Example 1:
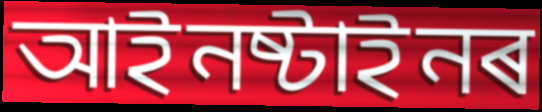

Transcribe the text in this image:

আইনষ্টাইনৰ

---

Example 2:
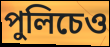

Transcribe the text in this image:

পুলিচেও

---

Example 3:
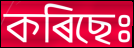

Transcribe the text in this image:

কৰিছেঃ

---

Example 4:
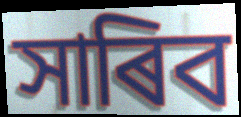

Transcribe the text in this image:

সাৰিব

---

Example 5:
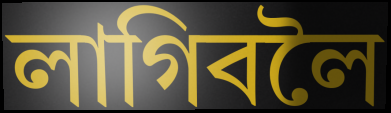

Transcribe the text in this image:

লাগিবলৈ